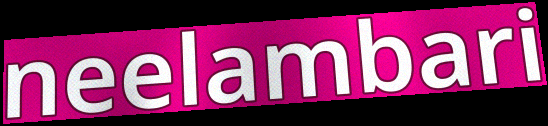
neelambari